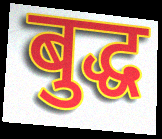
बुद्ध